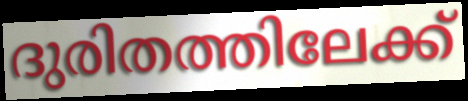
ദുരിതത്തിലേക്ക്